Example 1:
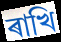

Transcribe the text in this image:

ৰাখি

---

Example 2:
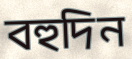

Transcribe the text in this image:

বহুদিন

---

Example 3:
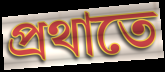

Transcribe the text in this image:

প্ৰথাতে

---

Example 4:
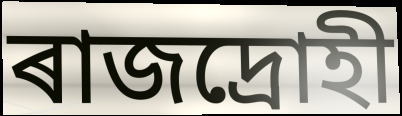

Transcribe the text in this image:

ৰাজদ্ৰোহী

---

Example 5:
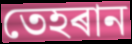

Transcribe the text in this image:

তেহৰান